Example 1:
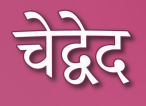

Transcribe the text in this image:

चेद्वेद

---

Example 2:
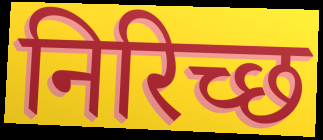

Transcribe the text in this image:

निरिच्छ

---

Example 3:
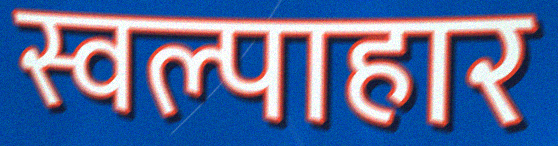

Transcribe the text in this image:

स्वल्पाहार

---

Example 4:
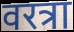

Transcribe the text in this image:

वरत्रा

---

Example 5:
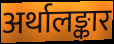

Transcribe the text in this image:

अर्थालङ्कार